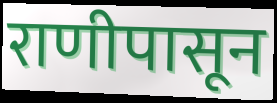
राणीपासून